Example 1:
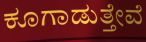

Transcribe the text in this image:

ಕೂಗಾಡುತ್ತೇವೆ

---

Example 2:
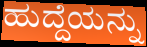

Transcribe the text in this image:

ಹುದ್ದೆಯನ್ನು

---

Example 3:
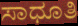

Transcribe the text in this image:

ಸಾಧೂತಿ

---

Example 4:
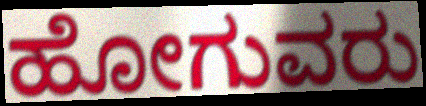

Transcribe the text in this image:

ಹೋಗುವರು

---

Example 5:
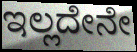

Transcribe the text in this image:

ಇಲ್ಲದೇನೇ